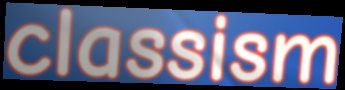
classism